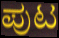
ಪುಟ